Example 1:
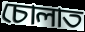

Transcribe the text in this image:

চোলাত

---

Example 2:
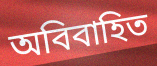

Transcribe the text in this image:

অবিবাহিত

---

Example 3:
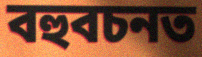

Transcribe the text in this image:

বহুবচনত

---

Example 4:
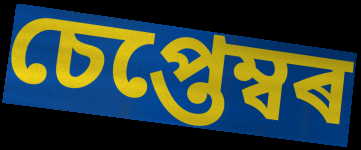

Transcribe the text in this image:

চেপ্তেম্বৰ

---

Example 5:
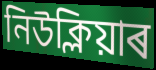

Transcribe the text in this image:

নিউক্লিয়াৰ